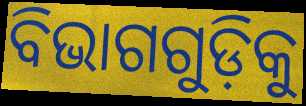
ବିଭାଗଗୁଡ଼ିକୁ